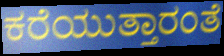
ಕರೆಯುತ್ತಾರಂತೆ